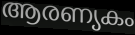
ആരണ്യകം